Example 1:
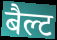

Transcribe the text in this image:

बैल्ट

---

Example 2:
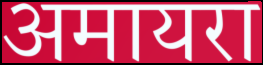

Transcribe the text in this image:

अमायरा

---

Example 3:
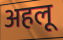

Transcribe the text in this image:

अहलू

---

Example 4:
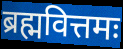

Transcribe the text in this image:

ब्रह्मवित्तमः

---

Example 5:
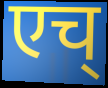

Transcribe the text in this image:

एच्